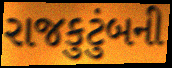
રાજકુટુંબની